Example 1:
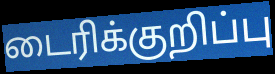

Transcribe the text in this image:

டைரிக்குறிப்பு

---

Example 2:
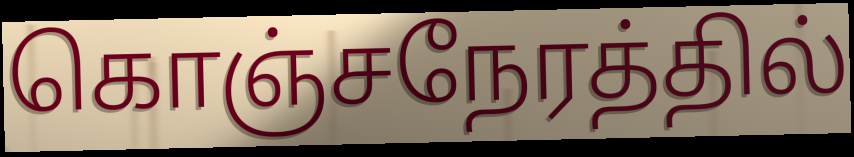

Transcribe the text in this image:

கொஞ்சநேரத்தில்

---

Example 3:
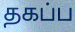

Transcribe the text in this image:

தகப்ப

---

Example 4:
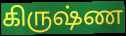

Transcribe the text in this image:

கிருஷ்ண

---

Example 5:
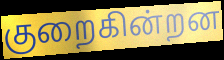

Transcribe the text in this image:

குறைகின்றன